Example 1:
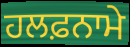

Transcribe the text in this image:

ਹਲਫ਼ਨਾਮੇ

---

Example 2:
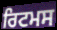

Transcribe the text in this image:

ਰਿਟਮਸ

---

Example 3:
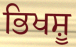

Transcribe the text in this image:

ਭਿਖਸ਼ੂ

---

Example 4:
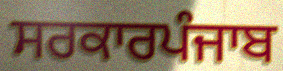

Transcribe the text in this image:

ਸਰਕਾਰਪੰਜਾਬ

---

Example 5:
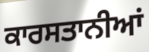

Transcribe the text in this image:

ਕਾਰਸਤਾਨੀਆਂ